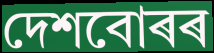
দেশবোৰৰ